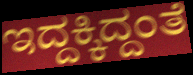
ಇದ್ದಕ್ಕಿದ್ದಂತೆ